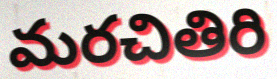
మరచితిరి